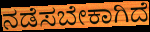
ನಡೆಸಬೇಕಾಗಿದೆ